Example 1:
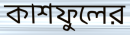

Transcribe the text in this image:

কাশফুলের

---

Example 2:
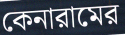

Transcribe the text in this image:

কেনারামের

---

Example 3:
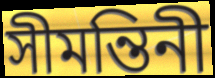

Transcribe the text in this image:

সীমন্তিনী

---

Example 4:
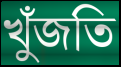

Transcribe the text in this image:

খুঁজতি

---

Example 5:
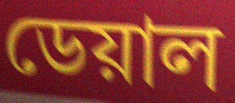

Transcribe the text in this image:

ডেয়াল